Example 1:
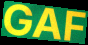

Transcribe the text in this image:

GAF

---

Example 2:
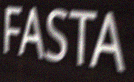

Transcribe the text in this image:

FASTA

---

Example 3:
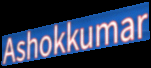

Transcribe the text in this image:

Ashokkumar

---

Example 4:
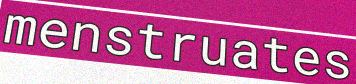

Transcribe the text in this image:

menstruates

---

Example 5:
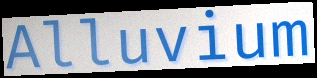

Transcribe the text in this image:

Alluvium